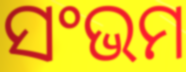
ସଂଭମ